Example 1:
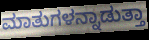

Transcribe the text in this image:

ಮಾತುಗಳನ್ನಾಡುತ್ತಾ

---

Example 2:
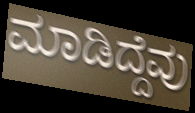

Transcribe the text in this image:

ಮಾಡಿದ್ದೆವು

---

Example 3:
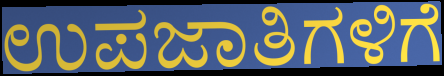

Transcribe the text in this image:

ಉಪಜಾತಿಗಳಿಗೆ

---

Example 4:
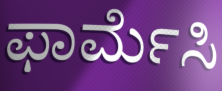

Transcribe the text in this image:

ಫಾರ್ಮೆಸಿ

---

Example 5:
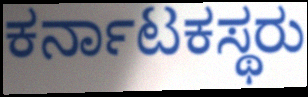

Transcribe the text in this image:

ಕರ್ನಾಟಕಸ್ಥರು